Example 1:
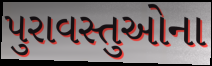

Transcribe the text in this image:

પુરાવસ્તુઓના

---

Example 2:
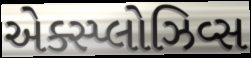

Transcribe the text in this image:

એક્સ્પ્લોઝિવ્સ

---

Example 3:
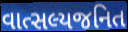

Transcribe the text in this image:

વાત્સલ્યજનિત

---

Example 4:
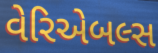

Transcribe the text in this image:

વેરિએબલ્સ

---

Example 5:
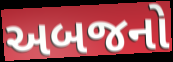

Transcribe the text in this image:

અબજનો